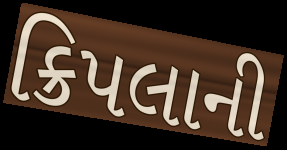
ક્રિપલાની